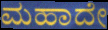
ಮಹಾದೇ